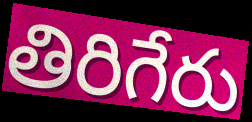
తిరిగేరు